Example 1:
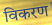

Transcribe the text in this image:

विकरण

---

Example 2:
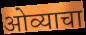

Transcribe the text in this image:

ओव्याचा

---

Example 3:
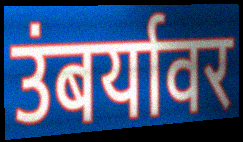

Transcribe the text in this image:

उंबर्यावर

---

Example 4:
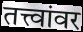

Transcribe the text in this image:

तत्त्वांवर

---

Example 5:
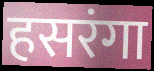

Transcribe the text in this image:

हसरंगा